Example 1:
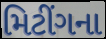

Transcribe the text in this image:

મિટીંગના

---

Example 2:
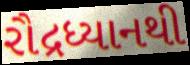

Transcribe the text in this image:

રૌદ્રધ્યાનથી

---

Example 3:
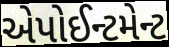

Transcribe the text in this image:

એપોઈન્ટમેન્ટ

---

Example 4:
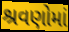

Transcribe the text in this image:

શ્રવણોમાં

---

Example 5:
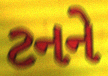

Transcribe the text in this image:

ટનને